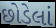
છોડેલાં